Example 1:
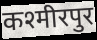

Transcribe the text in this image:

कश्मीरपुर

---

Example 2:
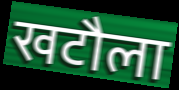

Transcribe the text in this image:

खटौला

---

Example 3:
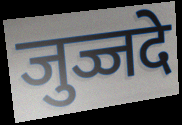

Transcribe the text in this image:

जुज्जदे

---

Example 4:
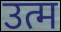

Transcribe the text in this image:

उत्म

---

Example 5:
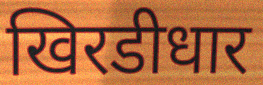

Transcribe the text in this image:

खिरडीधार